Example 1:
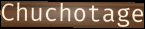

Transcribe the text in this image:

Chuchotage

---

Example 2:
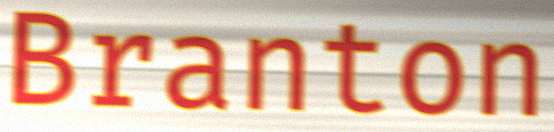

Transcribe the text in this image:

Branton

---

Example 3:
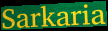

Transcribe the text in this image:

Sarkaria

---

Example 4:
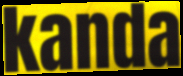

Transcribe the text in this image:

kanda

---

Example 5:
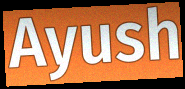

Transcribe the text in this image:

Ayush